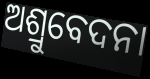
ଅଶ୍ରୁବେଦନା